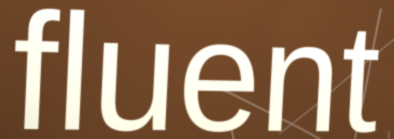
fluent